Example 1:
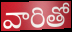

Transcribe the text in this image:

వారితో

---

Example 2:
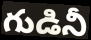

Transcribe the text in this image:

గుడినీ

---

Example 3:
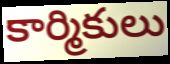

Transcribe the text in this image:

కార్మికులు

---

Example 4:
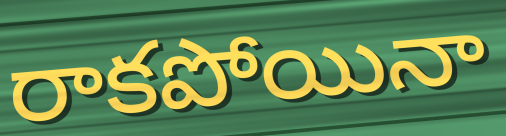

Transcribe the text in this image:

రాకపోయినా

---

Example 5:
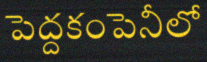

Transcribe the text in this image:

పెద్దకంపెనీలో